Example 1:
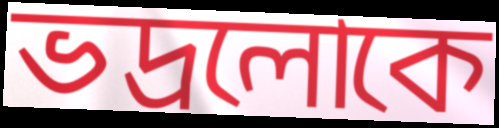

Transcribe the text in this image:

ভদ্ৰলোকে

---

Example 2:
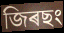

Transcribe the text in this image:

জিৰছং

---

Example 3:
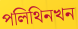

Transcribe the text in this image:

পলিথিনখন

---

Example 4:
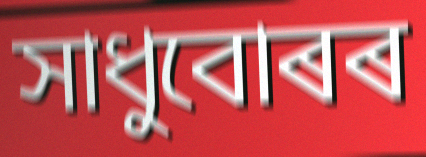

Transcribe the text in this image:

সাধুবোৰৰ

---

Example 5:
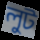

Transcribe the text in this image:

লুট